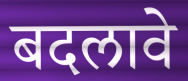
बदलावे